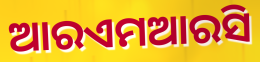
ଆରଏମଆରସି